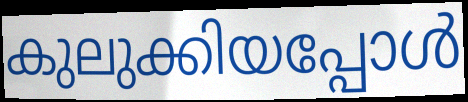
കുലുക്കിയപ്പോൾ